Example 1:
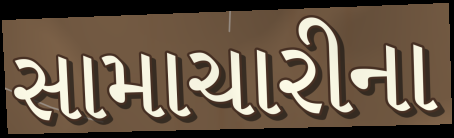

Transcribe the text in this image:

સામાચારીના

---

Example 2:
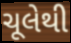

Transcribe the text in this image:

ચૂલેથી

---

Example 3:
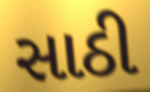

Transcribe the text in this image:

સાઠી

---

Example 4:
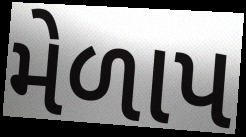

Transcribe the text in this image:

મેળાપ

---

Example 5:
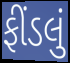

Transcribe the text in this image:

ફીંડલું